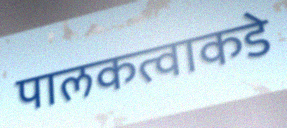
पालकत्वाकडे